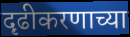
दृढीकरणाच्या